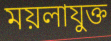
ময়লাযুক্ত